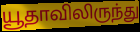
யூதாவிலிருந்து